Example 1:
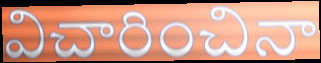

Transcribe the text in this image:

విచారించినా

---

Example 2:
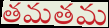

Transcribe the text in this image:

తమతమ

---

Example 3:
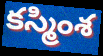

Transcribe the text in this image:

కస్మింశ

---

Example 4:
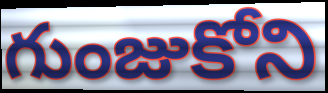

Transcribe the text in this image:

గుంజుకోని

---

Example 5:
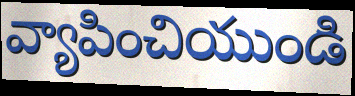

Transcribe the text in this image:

వ్యాపించియుండి